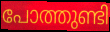
പോത്തുണ്ടി